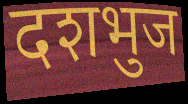
दशभुज